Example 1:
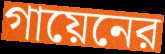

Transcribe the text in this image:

গায়েনের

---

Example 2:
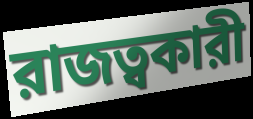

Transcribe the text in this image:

রাজত্বকারী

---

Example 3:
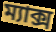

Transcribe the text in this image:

ম্যাক্স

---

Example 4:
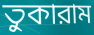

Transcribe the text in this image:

তুকারাম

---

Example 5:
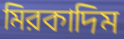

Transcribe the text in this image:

মিরকাদিম